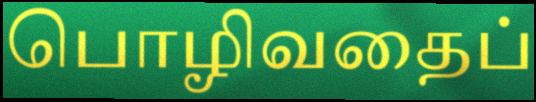
பொழிவதைப்